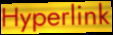
Hyperlink